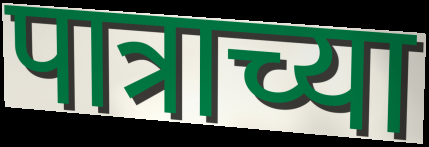
पात्राच्‍या